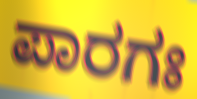
ಪಾರಗಃ